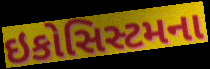
ઇકોસિસ્ટમના